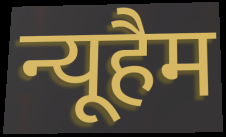
न्यूहैम